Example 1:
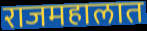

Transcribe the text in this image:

राजमहालात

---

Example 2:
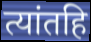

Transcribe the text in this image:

त्यांतहि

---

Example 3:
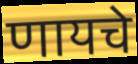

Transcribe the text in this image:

णायचे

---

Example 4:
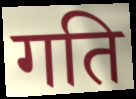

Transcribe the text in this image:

गति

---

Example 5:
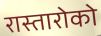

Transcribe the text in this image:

रास्तारोको